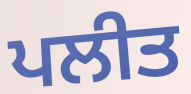
ਪਲੀਤ